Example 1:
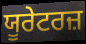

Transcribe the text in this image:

ਯੂਰੇਟਰਜ਼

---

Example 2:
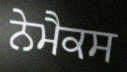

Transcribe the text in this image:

ਨੇਮੈਕਸ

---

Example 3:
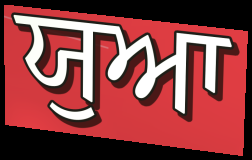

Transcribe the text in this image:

ਯੁਆ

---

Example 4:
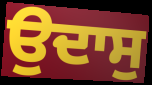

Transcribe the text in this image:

ਉਦਾਸੁ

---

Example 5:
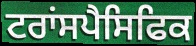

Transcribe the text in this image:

ਟਰਾਂਸਪੈਸਿਫਿਕ